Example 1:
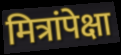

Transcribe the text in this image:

मित्रांपेक्षा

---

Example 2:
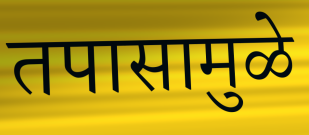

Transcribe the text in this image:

तपासामुळे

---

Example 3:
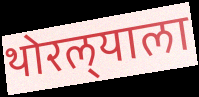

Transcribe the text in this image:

थोरल्याला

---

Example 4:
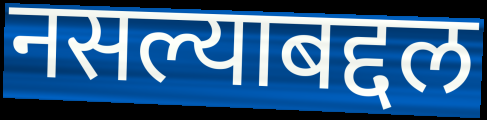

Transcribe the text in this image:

नसल्याबद्दल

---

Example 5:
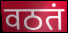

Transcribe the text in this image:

वठतं